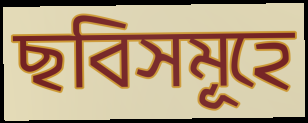
ছবিসমূহে